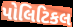
પોલિટિકલ